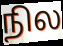
நில